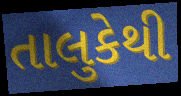
તાલુકેથી